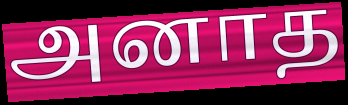
அனாத